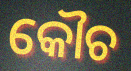
କୌଚ